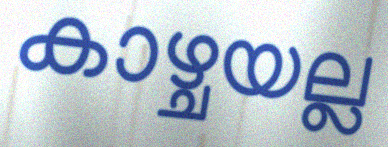
കാഴ്ചയല്ല